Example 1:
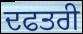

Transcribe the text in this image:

ਦਫਤਰੀ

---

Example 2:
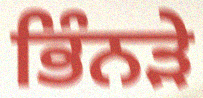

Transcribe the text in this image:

ਭਿੰਨੜੇ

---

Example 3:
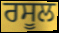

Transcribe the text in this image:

ਰਸੂਲ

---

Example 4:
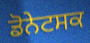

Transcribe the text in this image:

ਡੋਨੇਟਸਕ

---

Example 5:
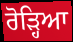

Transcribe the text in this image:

ਰੋੜ੍ਹਿਆ